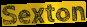
Sexton